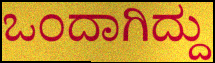
ಒಂದಾಗಿದ್ದು